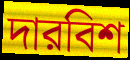
দারবিশ